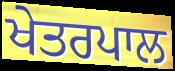
ਖੇਤਰਪਾਲ